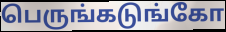
பெருங்கடுங்கோ